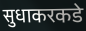
सुधाकरकडे